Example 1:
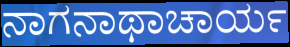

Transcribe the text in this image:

ನಾಗನಾಥಾಚಾರ್ಯ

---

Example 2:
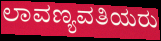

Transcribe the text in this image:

ಲಾವಣ್ಯವತಿಯರು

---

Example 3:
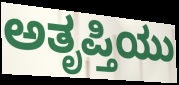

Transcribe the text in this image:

ಅತೃಪ್ತಿಯು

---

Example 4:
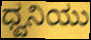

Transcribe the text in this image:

ಧ್ವನಿಯು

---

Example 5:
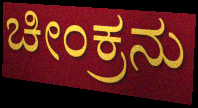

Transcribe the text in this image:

ಚೀಂಕ್ರನು